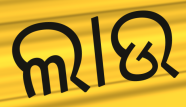
ଲାଉ